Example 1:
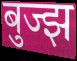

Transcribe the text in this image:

बुज्झ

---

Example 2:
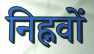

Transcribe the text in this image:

निह्नवों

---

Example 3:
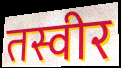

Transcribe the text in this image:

तस्‍वीर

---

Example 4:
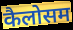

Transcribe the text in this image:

कैलोसम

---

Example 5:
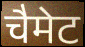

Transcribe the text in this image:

चैमेट